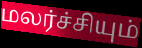
மலர்ச்சியும்